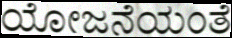
ಯೋಜನೆಯಂತೆ